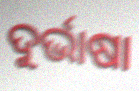
ଦୁର୍ଭାଷା